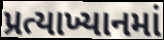
પ્રત્યાખ્યાનમાં